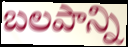
బలపాన్ని